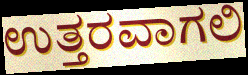
ಉತ್ತರವಾಗಲಿ